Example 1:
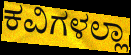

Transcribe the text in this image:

ಕವಿಗಳಲ್ಲಾ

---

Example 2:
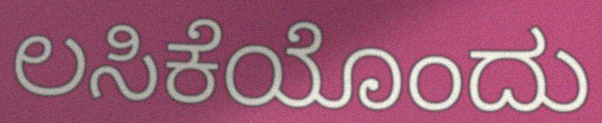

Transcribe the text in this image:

ಲಸಿಕೆಯೊಂದು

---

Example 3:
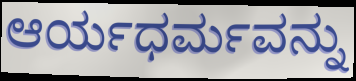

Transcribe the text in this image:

ಆರ್ಯಧರ್ಮವನ್ನು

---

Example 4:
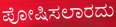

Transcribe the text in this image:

ಪೋಷಿಸಲಾರದು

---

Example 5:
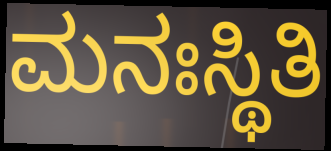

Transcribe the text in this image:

ಮನಃಸ್ಥಿತಿ